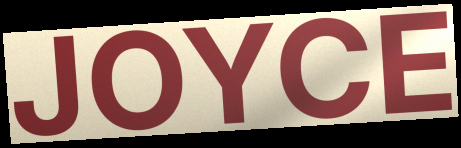
JOYCE